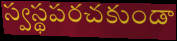
స్వస్థపరచకుండా